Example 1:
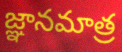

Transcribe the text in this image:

జ్ఞానమాత్ర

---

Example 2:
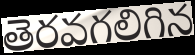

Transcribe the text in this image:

తెరవగలిగిన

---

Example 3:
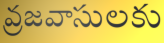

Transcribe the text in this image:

వ్రజవాసులకు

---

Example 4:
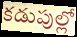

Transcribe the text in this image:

కడుపుల్లో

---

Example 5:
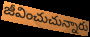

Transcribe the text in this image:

జీవించుచున్నారు